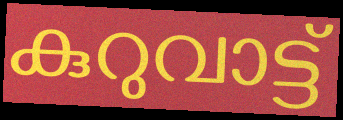
കുറുവാട്ട്